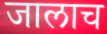
जालाच